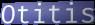
Otitis